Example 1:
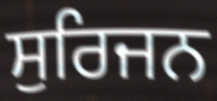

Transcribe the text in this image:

ਸੁਰਿਜਨ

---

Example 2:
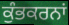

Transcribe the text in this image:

ਕੁੰਭਕਰਨਾਂ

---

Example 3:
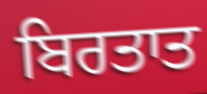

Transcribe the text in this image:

ਬਿਰਤਾਤ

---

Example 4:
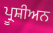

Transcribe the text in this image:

ਪ੍ਰੂਸ਼ੀਅਨ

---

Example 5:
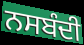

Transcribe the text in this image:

ਨਸਬੰਦੀ